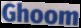
Ghoom